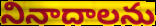
నినాదాలను